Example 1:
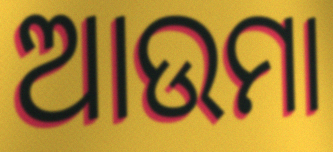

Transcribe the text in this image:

ଆଉମା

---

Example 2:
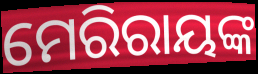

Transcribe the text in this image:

ମେରିରାୟଙ୍କ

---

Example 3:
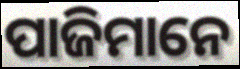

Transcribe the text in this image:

ପାଜିମାନେ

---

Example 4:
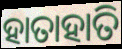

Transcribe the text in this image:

ହାତାହାତି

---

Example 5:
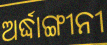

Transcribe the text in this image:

ଅର୍ଦ୍ଧାଙ୍ଗୀନୀ